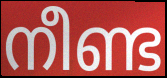
നീണ്ട